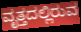
ವೃತ್ತದಲ್ಲಿರುವ